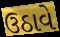
ઉઠાવે